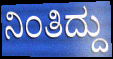
ನಿಂತಿದ್ದು